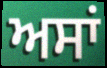
ਅਸਾਂ